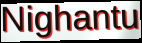
Nighantu